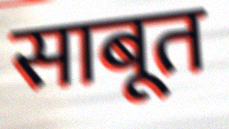
साबूत